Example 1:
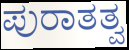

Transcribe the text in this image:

ಪುರಾತತ್ವ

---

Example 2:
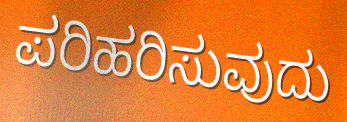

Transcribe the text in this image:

ಪರಿಹರಿಸುವುದು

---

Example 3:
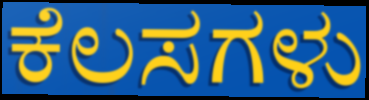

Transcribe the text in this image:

ಕೆಲಸಗಳು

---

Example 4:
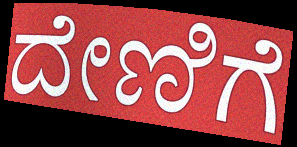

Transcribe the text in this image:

ದೇಣಿಗೆ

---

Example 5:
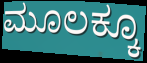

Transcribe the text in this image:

ಮೂಲಕ್ಕೂ